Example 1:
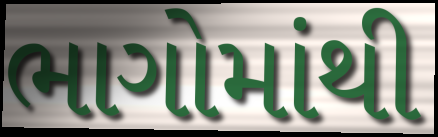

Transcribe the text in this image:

ભાગોમાંથી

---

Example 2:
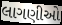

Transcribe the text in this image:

લાગણીઓ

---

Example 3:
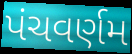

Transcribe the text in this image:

પંચવર્ણમ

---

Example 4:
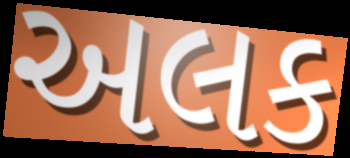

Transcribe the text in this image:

અલક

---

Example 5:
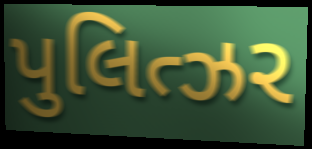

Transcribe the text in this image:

પુલિત્ઝર